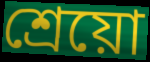
শ্রেয়ো